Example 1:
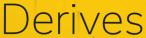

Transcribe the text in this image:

Derives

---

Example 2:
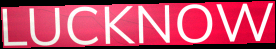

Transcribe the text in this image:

LUCKNOW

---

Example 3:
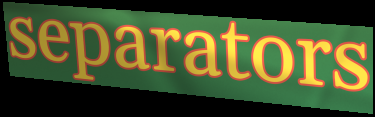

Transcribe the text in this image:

separators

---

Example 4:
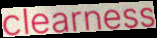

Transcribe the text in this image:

clearness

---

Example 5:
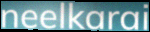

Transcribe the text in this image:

neelkarai